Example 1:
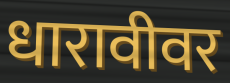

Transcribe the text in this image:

धारावीवर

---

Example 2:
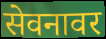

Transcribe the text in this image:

सेवनावर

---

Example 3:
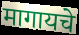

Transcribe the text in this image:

मागायचे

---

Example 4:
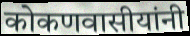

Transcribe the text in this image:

कोकणवासीयांनी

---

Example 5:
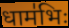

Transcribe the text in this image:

धाम॑भिः